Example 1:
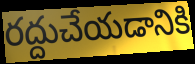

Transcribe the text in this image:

రద్దుచేయడానికి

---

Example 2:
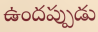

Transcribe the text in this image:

ఉందప్పుడు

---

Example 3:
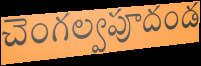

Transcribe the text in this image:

చెంగల్వపూదండ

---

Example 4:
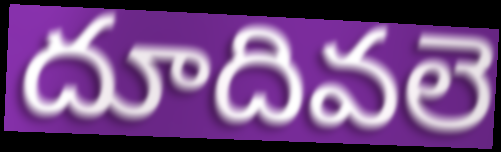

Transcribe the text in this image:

దూదివలె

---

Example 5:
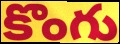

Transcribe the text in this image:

కొంగు